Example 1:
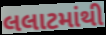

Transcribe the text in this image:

લલાટમાંથી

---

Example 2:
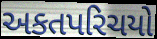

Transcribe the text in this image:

અકતપરિચયો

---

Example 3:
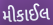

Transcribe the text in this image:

મીકાઈલ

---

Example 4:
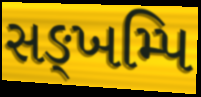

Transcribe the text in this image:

સઙ્ખમ્પિ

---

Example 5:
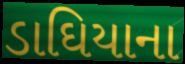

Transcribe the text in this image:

ડાઘિયાના